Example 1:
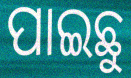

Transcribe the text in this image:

ପାଇଛୁ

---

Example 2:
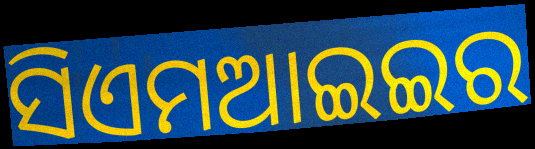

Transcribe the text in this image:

ସିଏମଆଇଇର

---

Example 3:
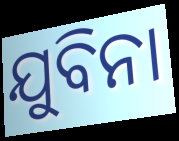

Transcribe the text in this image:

ଯୁବିନା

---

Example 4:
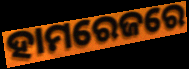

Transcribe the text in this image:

ହାମରେଜରେ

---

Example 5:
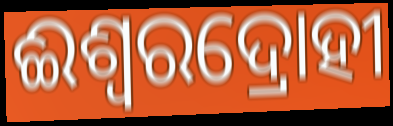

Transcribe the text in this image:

ଈଶ୍ଵରଦ୍ରୋହୀ